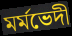
মৰ্মভেদী